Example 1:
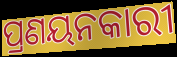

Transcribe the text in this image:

ପ୍ରଣୟନକାରୀ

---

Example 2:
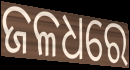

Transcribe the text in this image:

ଜଳଧରେ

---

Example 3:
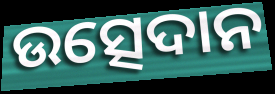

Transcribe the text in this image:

ଉତ୍ସେଦାନ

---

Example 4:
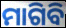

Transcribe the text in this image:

ମାଗିବି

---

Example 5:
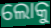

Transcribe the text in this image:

ଲୋକୁ